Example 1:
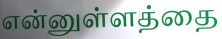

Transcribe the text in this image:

என்னுள்ளத்தை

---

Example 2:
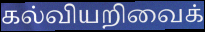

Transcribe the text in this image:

கல்வியறிவைக்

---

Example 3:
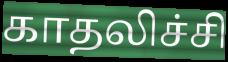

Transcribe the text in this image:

காதலிச்சி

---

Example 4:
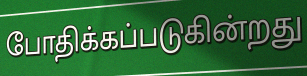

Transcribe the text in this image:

போதிக்கப்படுகின்றது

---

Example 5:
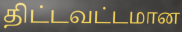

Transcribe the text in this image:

திட்டவட்டமான